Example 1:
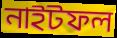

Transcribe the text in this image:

নাইটফল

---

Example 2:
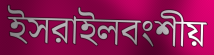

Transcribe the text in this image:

ইসরাইলবংশীয়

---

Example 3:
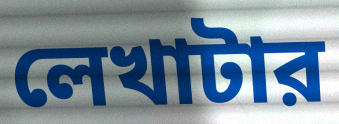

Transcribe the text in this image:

লেখাটার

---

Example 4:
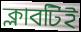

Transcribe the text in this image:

ক্লাবটিই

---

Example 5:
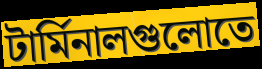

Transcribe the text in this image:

টার্মিনালগুলোতে